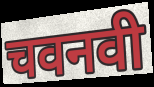
चवनवी